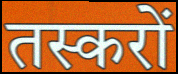
तस्करों